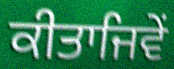
ਕੀਤਾਜਿਵੇਂ